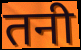
तनी